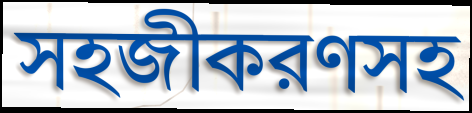
সহজীকরণসহ